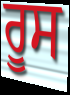
ਰੂਸ